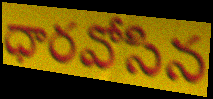
ధారవోసిన